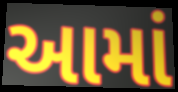
આમાં